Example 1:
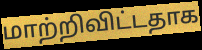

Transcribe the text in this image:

மாற்றிவிட்டதாக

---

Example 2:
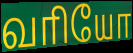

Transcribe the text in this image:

வரியோ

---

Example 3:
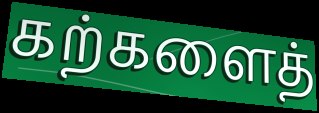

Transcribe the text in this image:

கற்களைத்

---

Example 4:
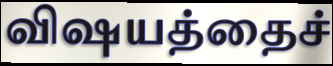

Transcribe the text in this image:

விஷயத்தைச்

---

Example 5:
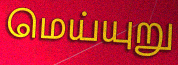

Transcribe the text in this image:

மெய்யுறு